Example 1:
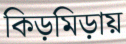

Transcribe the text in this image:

কিড়মিড়ায়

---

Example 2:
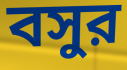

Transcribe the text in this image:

বসুর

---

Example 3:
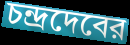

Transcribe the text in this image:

চন্দ্রদেবের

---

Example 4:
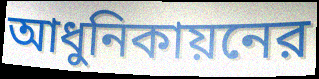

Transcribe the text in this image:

আধুনিকায়নের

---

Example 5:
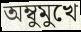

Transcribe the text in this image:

অম্বুমুখে